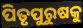
ପିତୃପୁରୁଷକୁ